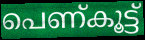
പെണ്കൂട്ട്